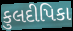
કુલદીપિકા